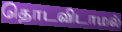
தொடவிடாமல்